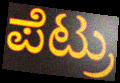
ಪೆಟ್ರು